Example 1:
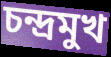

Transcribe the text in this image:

চন্দ্রমুখ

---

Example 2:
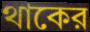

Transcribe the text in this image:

থাকের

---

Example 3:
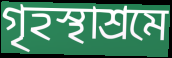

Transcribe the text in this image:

গৃহস্থাশ্রমে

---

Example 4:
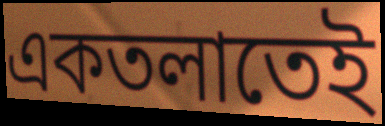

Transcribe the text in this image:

একতলাতেই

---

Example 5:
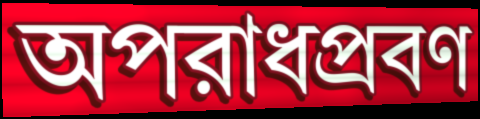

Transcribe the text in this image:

অপরাধপ্রবণ